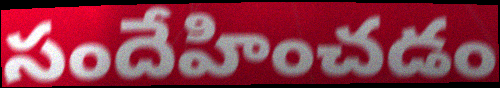
సందేహించడం